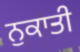
ਨੁਕਾਤੀ